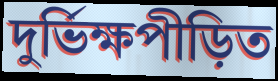
দুৰ্ভিক্ষপীড়িত